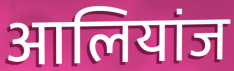
आलियांज